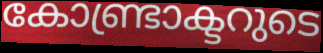
കോണ്ട്രാക്ടറുടെ